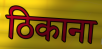
ठिकाना